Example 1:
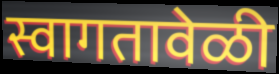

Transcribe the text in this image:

स्वागतावेळी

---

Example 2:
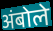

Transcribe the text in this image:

अंबोले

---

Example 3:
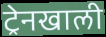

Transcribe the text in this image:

ट्रेनखाली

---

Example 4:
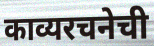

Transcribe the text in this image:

काव्यरचनेची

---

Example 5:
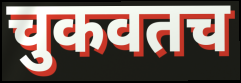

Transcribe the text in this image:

चुकवतच